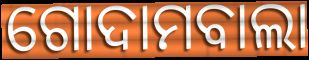
ଗୋଦାମବାଲା